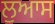
ਲੁਆਸ